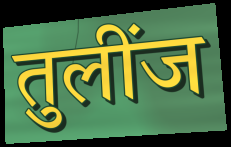
तुलींज